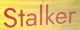
Stalker